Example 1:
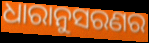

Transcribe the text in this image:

ଧାରାନୁସରଣର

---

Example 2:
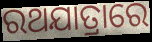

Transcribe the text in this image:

ରଥଯାତ୍ରାରେ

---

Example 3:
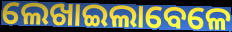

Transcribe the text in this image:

ଲେଖାଇଲାବେଳେ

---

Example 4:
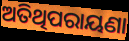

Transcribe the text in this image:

ଅତିଥିପରାୟଣା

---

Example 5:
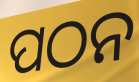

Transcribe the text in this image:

ପଠନ